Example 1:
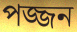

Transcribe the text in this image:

পজ্জন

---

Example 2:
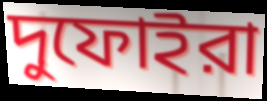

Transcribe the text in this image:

দুফোইরা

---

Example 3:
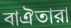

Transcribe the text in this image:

বাঐতারা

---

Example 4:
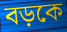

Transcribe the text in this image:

বড়কে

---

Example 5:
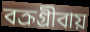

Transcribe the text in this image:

বক্রগ্রীবায়